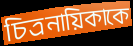
চিত্রনায়িকাকে